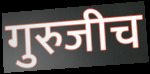
गुरुजीच